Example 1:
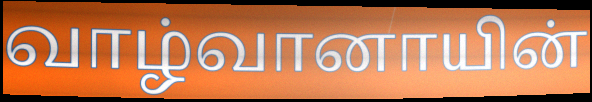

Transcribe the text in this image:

வாழ்வானாயின்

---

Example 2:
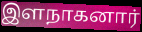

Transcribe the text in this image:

இளநாகனார்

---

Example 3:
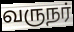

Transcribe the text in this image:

வருநர்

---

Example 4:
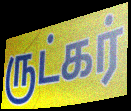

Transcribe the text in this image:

ருட்கர்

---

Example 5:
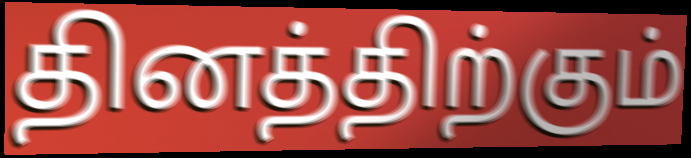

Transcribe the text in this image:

தினத்திற்கும்